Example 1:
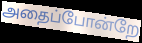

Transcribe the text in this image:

அதைப்போன்றே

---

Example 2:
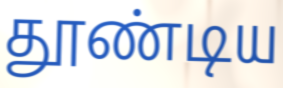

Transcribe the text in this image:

தூண்டிய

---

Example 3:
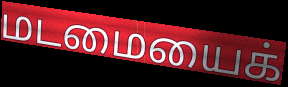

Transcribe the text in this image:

மடமையைக்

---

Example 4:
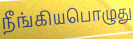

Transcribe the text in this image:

நீங்கியபொழுது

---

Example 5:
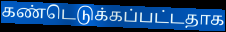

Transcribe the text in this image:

கண்டெடுக்கப்பட்டதாக